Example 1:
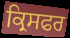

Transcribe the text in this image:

ਕ੍ਰਿਸਫਰ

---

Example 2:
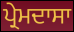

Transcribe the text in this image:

ਪ੍ਰੇਮਦਾਸਾ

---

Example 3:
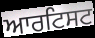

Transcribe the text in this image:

ਆਰਟਿਸਟ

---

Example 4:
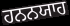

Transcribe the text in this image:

ਹਨਨਯਾਹ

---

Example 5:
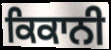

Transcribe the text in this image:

ਕਿਕਾਨੀ